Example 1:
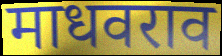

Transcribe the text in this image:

माधवराव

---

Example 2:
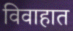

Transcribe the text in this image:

विवाहात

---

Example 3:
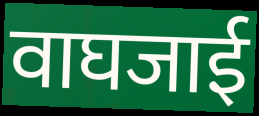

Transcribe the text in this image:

वाघजाई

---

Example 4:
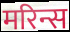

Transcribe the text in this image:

मरिन्स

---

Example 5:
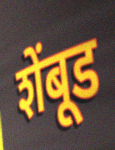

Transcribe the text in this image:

शेंबूड